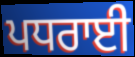
ਪਧਰਾਈ